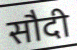
सौदी